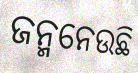
ଜନ୍ମନେଉଛି